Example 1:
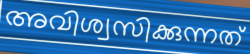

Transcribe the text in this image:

അവിശ്വസിക്കുന്നത്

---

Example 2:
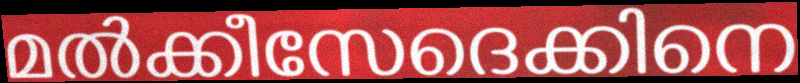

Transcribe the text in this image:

മൽക്കീസേദെക്കിനെ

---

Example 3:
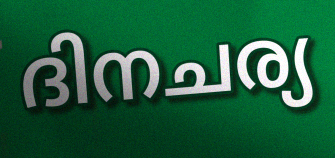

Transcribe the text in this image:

ദിനചര്യ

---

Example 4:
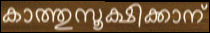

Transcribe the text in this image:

കാത്തുസൂക്ഷിക്കാന്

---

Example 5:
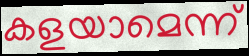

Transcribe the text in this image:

കളയാമെന്ന്